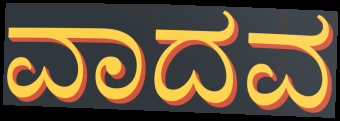
ವಾದವ